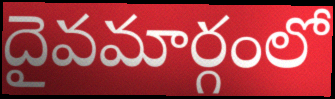
దైవమార్గంలో